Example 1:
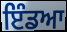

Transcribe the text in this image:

ਇੰਡਆ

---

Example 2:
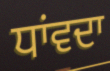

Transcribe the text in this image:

ਧਾਂਵਦਾ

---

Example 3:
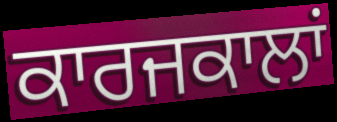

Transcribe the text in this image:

ਕਾਰਜਕਾਲਾਂ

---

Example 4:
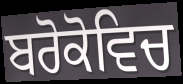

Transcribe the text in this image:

ਬਰੋਕੋਵਿਚ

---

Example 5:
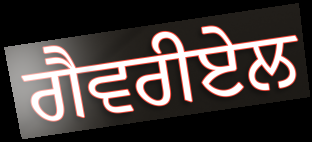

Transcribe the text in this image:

ਗੈਵਰੀਏਲ